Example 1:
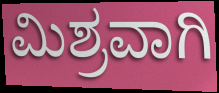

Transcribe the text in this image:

ಮಿಶ್ರವಾಗಿ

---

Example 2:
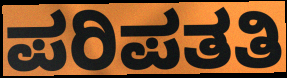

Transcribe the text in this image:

ಪರಿಪತತಿ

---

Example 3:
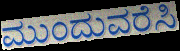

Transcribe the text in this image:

ಮುಂದುವರೆಸಿ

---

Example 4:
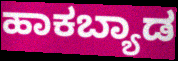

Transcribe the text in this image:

ಹಾಕಬ್ಯಾಡ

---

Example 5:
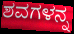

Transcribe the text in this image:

ಶವಗಳನ್ನ